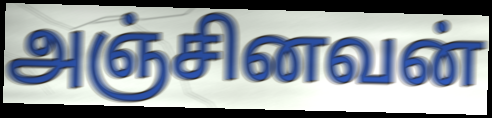
அஞ்சினவன்